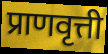
प्राणवृत्ती